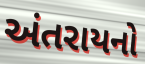
અંતરાયનો